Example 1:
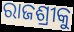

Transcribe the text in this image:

ରାଜଶ୍ରୀକୁ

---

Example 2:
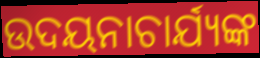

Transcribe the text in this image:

ଉଦୟନାଚାର୍ଯ୍ୟଙ୍କ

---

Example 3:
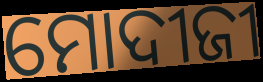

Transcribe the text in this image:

ମୋଦୀଜୀ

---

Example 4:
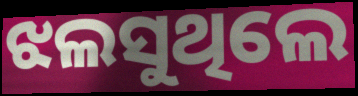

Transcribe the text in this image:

ଝଲସୁଥିଲେ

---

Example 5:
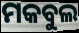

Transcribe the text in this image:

ମକବୁଲ